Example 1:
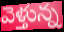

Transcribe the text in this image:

వెళ్తున్న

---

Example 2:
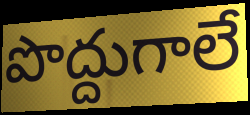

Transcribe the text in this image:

పొద్దుగాలే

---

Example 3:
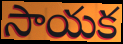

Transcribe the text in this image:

సాయక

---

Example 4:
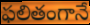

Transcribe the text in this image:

ఫలితంగానే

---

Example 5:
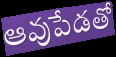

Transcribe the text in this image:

ఆవుపేడతో